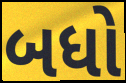
બધો